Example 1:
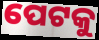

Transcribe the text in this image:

ପେଟକୁ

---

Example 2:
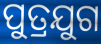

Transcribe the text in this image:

ପୁତ୍ରଯୁଗ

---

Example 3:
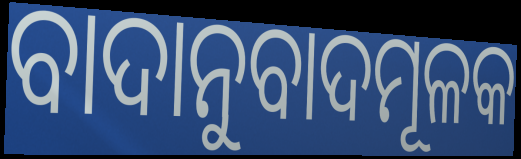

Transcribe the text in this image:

ବାଦାନୁବାଦମୂଳକ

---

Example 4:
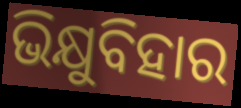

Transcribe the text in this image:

ଭିକ୍ଷୁବିହାର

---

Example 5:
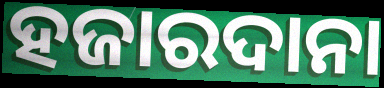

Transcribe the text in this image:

ହଜାରଦାନା